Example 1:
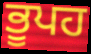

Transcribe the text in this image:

ਭੂਪਹ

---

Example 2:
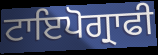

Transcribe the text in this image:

ਟਾਇਪੋਗ੍ਰਾਫੀ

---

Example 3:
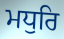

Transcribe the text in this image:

ਮਧੁਰਿ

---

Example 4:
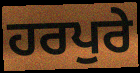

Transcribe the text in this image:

ਹਰਪੁਰੇ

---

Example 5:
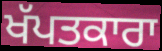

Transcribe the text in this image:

ਖੱਪਤਕਾਰਾ